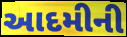
આદમીની